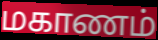
மகாணம்